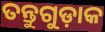
ତନ୍ତୁଗୁଡ଼ାକ